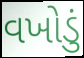
વખોડું